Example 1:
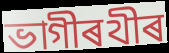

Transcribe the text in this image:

ভাগীৰথীৰ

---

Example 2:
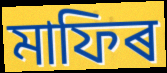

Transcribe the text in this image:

মাফিৰ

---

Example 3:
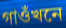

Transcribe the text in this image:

গাওঁখনে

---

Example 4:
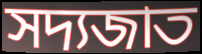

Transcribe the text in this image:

সদ্যজাত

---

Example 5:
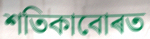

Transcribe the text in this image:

শতিকাবোৰত